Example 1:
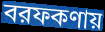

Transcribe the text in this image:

বরফকণায়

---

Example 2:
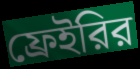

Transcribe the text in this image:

ফ্রেইরির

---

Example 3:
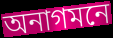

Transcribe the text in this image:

অনাগমনে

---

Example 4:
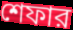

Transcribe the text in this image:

শেফার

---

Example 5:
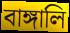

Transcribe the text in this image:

বাঙ্গালি